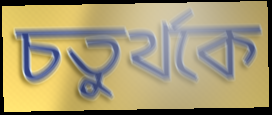
চতুর্থকে